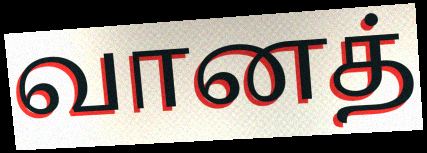
வானத்